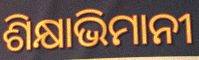
ଶିକ୍ଷାଭିମାନୀ